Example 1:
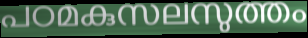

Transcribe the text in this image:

പഠമകുസലസുത്തം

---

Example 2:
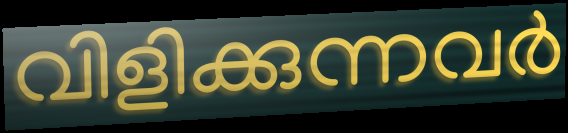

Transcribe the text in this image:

വിളിക്കുന്നവർ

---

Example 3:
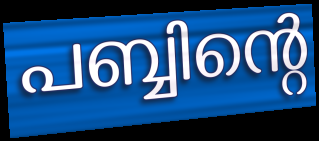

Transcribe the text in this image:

പബ്ബിന്റെ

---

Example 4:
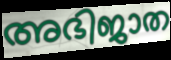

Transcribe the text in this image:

അഭിജാത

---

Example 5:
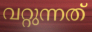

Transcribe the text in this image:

വറ്റുന്നത്